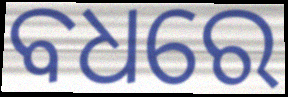
ବଧରେ